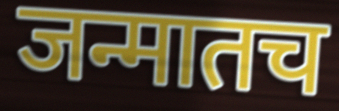
जन्मातच